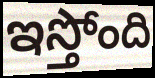
ఇస్తోంది